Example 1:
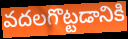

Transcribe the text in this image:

వదలగొట్టడానికి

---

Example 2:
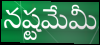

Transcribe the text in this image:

నష్టమేమీ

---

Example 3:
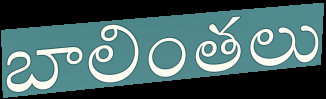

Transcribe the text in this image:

బాలింతలు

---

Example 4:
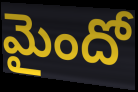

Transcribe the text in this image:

మైందో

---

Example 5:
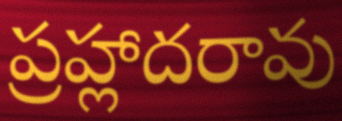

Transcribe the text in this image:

ప్రహ్లాదరావు